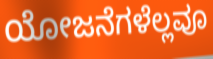
ಯೋಜನೆಗಳೆಲ್ಲವೂ